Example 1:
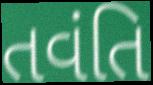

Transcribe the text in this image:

તવંતિ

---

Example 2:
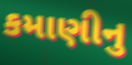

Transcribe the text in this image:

કમાણીનુ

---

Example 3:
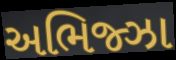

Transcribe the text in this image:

અભિજ્ઝા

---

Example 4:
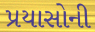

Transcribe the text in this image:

પ્રયાસોની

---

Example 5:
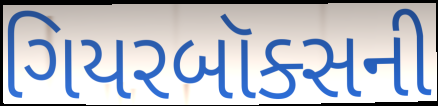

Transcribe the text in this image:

ગિયરબૉક્સની